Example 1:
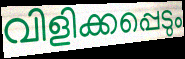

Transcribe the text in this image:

വിളിക്കപ്പെടും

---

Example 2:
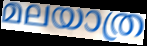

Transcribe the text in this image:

മലയാത്ര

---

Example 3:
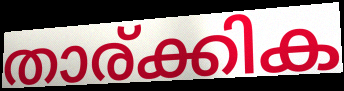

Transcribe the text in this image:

താര്ക്കിക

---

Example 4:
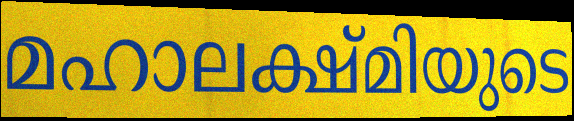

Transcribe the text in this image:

മഹാലക്ഷ്മിയുടെ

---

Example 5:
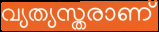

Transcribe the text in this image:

വ്യത്യസ്തരാണ്